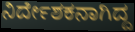
ನಿರ್ದೇಶಕನಾಗಿದ್ದ